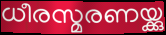
ധീരസ്മരണയ്ക്കു